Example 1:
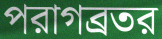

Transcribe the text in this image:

পরাগব্রতর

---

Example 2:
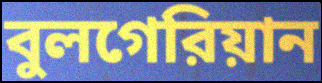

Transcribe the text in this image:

বুলগেরিয়ান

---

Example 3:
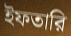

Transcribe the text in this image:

ইফতারি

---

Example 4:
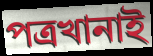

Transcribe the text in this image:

পত্রখানাই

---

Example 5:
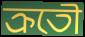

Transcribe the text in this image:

ক্রতৌ